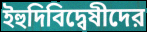
ইহুদিবিদ্বেষীদের